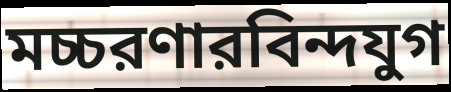
মচ্চরণারবিন্দযুগ